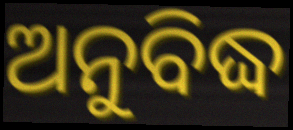
ଅନୁବିଦ୍ଧ